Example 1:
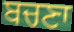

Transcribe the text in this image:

ਬਚਣਾ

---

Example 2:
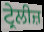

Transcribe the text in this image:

ਟ੍ਰੇਲੀਜ਼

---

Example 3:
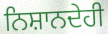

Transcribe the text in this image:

ਨਿਸ਼ਾਨਦੇਹੀ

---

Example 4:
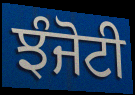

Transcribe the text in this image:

ਝੰਜੋਟੀ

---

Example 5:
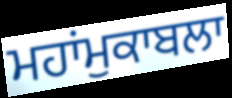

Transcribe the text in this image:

ਮਹਾਂਮੁਕਾਬਲਾ